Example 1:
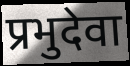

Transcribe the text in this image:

प्रभुदेवा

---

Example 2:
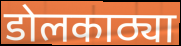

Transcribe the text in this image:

डोलकाठ्या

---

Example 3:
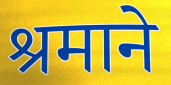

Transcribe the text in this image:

श्रमाने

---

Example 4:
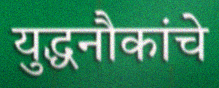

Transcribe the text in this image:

युद्धनौकांचे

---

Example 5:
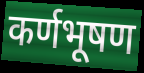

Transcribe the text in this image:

कर्णभूषण